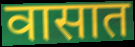
वासात